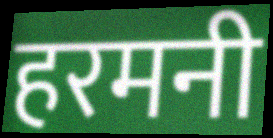
हरमनी